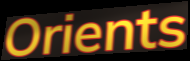
Orients